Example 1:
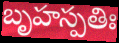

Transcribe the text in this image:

బృహస్పతిః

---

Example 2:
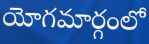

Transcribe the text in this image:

యోగమార్గంలో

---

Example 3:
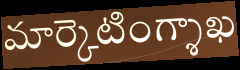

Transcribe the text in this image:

మార్కెటింగ్శాఖ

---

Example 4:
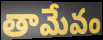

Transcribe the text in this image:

తామేవం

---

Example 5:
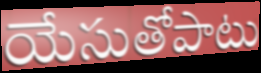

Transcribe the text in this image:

యేసుతోపాటు